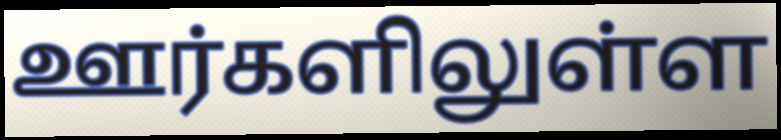
ஊர்களிலுள்ள